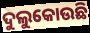
ଦୁଲୁକୋଉଛି